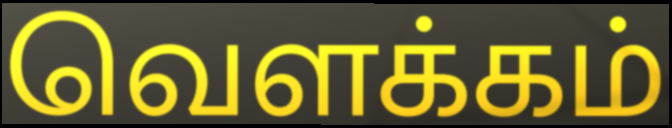
வெளக்கம்